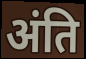
अंति